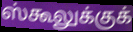
ஸ்கூலுக்குக்